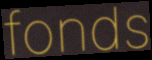
fonds